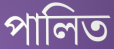
পালিত